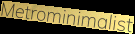
Metrominimalist